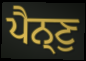
ਪੈਨ੍ਣੁ